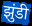
झुंडी